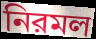
নিরমল